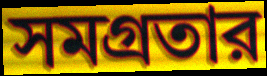
সমগ্রতার